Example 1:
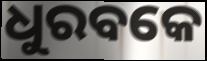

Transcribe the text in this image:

ଧୁରବକେ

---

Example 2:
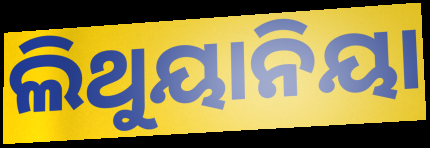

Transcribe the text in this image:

ଲିଥୁୟାନିୟା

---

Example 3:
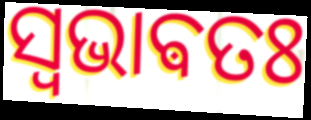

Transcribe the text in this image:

ସ୍ଵଭାଵତଃ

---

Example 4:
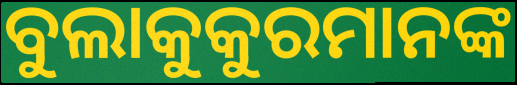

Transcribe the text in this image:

ବୁଲାକୁକୁରମାନଙ୍କ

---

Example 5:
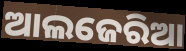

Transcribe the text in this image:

ଆଲଜେରିଆ